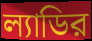
ল্যাডির